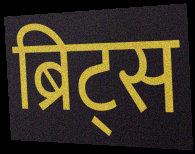
ब्रिट्स